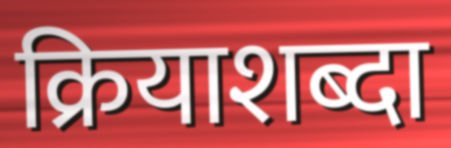
क्रियाशब्दा